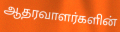
ஆதரவாளர்களின்